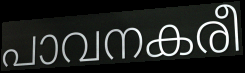
പാവനകരീ